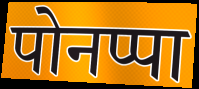
पोनप्‍पा